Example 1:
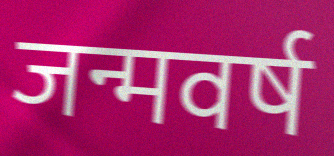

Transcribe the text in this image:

जन्मवर्ष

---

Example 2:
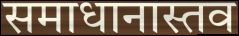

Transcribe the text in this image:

समाधानास्तव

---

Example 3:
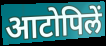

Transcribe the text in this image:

आटोपिलें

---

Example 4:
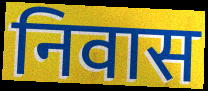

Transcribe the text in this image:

निवास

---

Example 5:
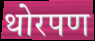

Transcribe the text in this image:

थोरपण